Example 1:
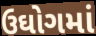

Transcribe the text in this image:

ઉઘોગમાં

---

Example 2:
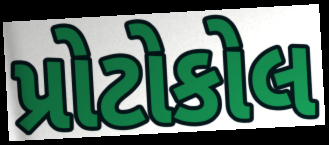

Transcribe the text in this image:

પ્રોટોકોલ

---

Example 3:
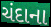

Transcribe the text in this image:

ચંદાના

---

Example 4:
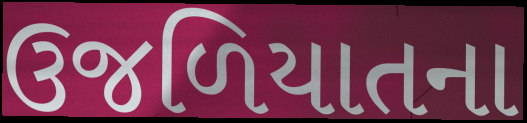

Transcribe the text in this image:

ઉજળિયાતના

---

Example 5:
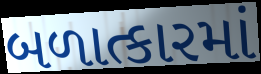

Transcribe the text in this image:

બળાત્કારમાં